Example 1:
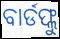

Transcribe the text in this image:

ବାର୍ଡଫ୍ଲୁ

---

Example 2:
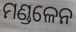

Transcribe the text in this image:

ମଣ୍ଡଳେନ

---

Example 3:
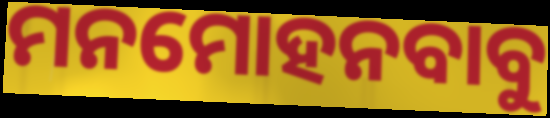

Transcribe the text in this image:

ମନମୋହନବାବୁ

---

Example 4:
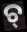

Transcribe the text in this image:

ଚ୍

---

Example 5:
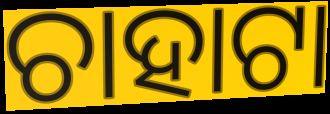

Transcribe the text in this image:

ଚାହାଟା